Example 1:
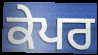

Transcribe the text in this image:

ਕੇਪਰ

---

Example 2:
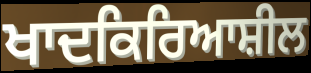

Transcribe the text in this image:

ਖਾਦਕਿਰਿਆਸ਼ੀਲ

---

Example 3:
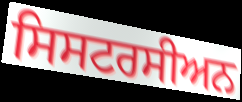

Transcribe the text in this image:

ਸਿਸਟਰਸੀਅਨ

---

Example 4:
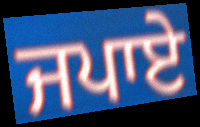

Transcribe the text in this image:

ਜਪਾਏ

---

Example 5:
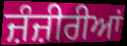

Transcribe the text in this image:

ਜ਼ੰਜ਼ੀਰੀਆਂ